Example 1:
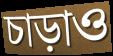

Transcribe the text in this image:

চাড়াও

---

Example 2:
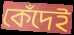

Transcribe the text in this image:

কেঁদেই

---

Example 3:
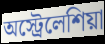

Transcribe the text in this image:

অস্ট্রেলেশিয়া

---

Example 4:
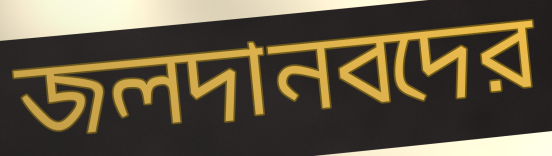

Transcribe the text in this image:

জলদানবদের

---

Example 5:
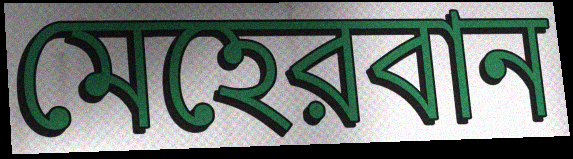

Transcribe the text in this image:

মেহেরবান